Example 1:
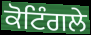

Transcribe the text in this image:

ਕੋਟਿੰਗਲੇ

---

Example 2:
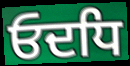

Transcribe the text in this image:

ਓਦਧਿ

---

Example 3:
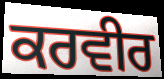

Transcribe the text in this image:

ਕਰਵੀਰ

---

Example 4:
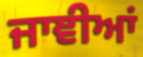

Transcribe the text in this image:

ਜਾਞੀਆਂ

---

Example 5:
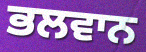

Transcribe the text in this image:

ਭਲਵਾਨ